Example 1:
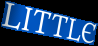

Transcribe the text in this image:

LITTLE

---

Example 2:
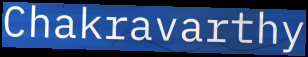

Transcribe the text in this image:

Chakravarthy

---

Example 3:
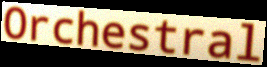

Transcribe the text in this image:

Orchestral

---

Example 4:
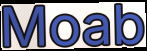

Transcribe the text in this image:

Moab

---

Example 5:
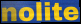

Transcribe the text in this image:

nolite